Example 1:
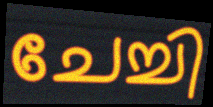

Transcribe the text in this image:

ചേച്ചി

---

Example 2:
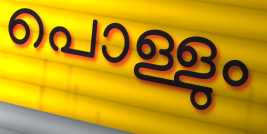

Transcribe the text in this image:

പൊള്ളും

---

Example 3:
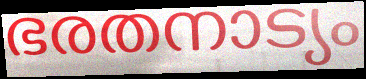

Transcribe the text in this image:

ഭരതനാട്യം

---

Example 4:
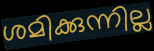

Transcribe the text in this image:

ശമിക്കുന്നില്ല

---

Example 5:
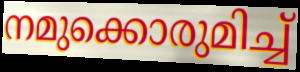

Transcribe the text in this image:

നമുക്കൊരുമിച്ച്